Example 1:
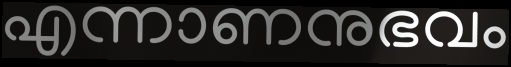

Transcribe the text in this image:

എന്നാണനുഭവം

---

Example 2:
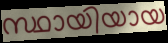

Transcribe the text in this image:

സ്ഥായിയായ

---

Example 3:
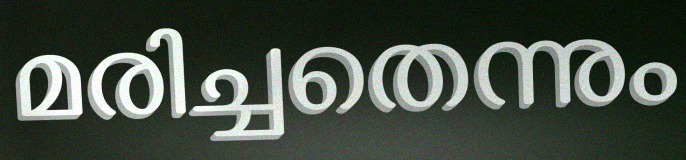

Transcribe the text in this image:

മരിച്ചതെന്നും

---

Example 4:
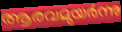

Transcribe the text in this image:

ആരവമുയർന്നു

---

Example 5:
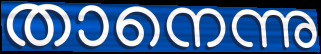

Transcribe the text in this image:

താനെന്നു